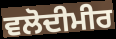
ਵਲੋਦੀਮੀਰ